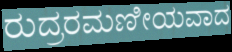
ರುದ್ರರಮಣೀಯವಾದ